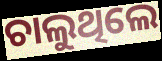
ଚାଲୁଥିଲେ